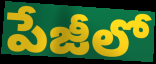
పేజీలో